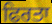
ਫਿਰਤਾ